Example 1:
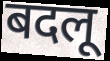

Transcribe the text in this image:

बदलू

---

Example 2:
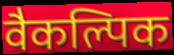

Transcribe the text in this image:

वैकल्पिक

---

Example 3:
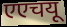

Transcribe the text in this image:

एएचयू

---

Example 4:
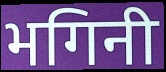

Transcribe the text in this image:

भगिनी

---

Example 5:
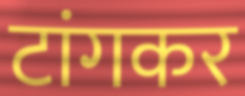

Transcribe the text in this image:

टांगकर